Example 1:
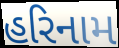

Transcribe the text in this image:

હરિનામ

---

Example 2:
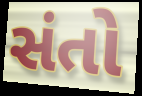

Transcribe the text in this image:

સંતો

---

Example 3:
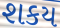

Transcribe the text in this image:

શકય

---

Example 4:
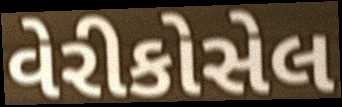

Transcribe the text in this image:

વેરીકોસેલ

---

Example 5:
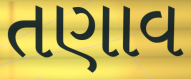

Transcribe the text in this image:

તણાવ